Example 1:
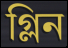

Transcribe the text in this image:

গ্লিন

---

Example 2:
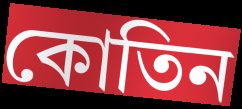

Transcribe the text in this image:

কোতিন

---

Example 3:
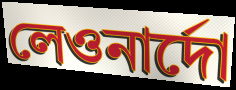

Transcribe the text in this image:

লেওনার্দো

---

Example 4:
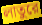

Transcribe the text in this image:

লাতুরে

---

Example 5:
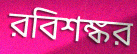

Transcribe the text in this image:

রবিশঙ্কর